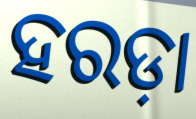
ହରଡ଼ା